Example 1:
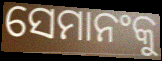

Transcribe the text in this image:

ସେମାନଂକୁ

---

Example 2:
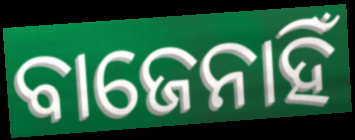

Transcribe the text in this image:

ବାଜେନାହିଁ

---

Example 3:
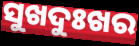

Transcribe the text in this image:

ସୁଖଦୁଃଖର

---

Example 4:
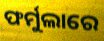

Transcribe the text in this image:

ଫର୍ମୁଲାରେ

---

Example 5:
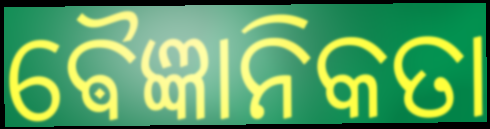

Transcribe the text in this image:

ଵୈଜ୍ଞାନିକତା